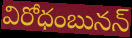
విరోధంబునన్